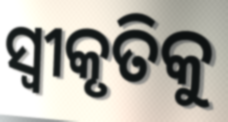
ସ୍ୱୀକୃତିକୁ